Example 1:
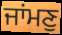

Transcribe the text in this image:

ਜਾਂਮਣੁ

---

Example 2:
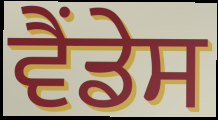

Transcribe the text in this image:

ਵੈਂਡੇਸ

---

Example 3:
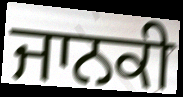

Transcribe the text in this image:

ਜਾਨਕੀ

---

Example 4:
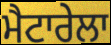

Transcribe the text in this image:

ਮੈਟਾਰੇਲਾ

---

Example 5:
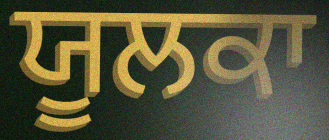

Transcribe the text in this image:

ਯੂਲਕਾ